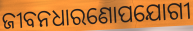
ଜୀବନଧାରଣୋପଯୋଗୀ